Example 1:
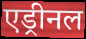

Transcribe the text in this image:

एड्रीनल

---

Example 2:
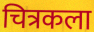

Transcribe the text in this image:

चित्रकला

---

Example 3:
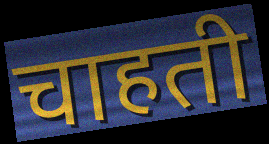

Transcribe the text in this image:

चाहती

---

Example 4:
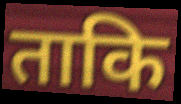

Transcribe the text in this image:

ताकि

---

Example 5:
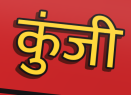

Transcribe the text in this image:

कुंजी